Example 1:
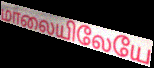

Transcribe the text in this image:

மாலையிலேயே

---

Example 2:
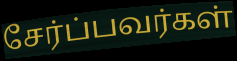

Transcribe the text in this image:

சேர்ப்பவர்கள்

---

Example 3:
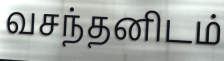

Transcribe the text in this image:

வசந்தனிடம்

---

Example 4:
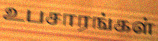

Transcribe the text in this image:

உபசாரங்கள்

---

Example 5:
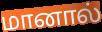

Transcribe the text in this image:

மானால்